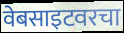
वेबसाइटवरचा